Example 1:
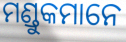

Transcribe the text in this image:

ମଣ୍ଡୁକମାନେ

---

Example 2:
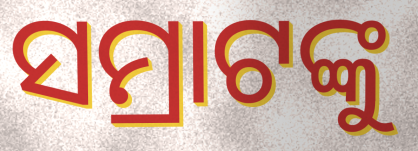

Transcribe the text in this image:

ସମ୍ରାଟଙ୍କୁ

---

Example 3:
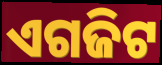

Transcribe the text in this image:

ଏଗଜିଟ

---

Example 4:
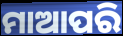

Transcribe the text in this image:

ମାଆପରି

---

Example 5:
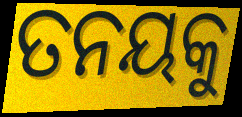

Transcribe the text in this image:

ତନୟକୁ